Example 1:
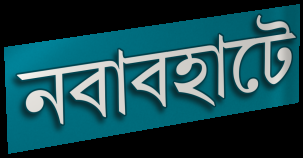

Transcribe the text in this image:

নবাবহাটে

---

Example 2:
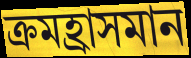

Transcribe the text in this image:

ক্রমহ্রাসমান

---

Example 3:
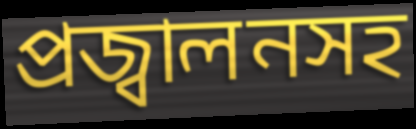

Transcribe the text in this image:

প্রজ্বালনসহ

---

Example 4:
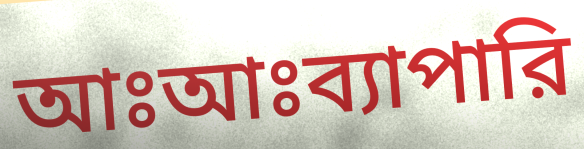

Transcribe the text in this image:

আঃআঃব্যাপারি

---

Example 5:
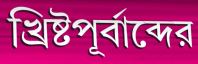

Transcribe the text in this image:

খ্রিষ্টপূর্বাব্দের